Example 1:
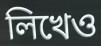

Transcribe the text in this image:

লিখেও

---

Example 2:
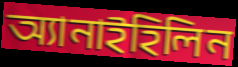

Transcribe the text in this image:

অ্যানাইহিলিন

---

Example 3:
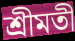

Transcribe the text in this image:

শ্রীমতী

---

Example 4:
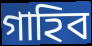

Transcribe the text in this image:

গাহিব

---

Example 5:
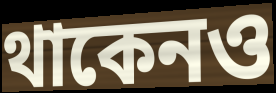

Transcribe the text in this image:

থাকেনও